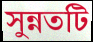
সুন্নতটি